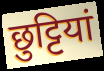
छुट्टियां